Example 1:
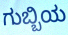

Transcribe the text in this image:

ಗುಬ್ಬಿಯ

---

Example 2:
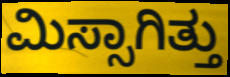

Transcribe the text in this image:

ಮಿಸ್ಸಾಗಿತ್ತು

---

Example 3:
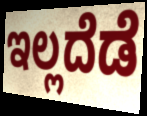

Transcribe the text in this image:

ಇಲ್ಲದೆಡೆ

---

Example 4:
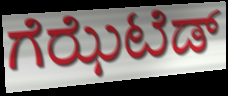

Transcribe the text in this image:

ಗೆಝೆಟೆಡ್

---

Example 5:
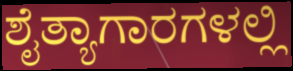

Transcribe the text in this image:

ಶೈತ್ಯಾಗಾರಗಳಲ್ಲಿ